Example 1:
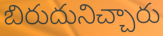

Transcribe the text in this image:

బిరుదునిచ్చారు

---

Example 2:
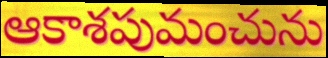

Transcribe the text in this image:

ఆకాశపుమంచును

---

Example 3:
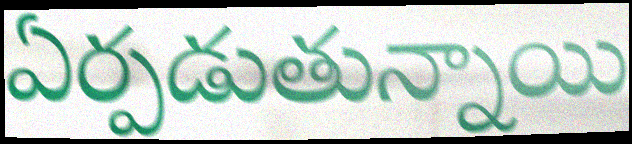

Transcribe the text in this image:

ఏర్పడుతున్నాయి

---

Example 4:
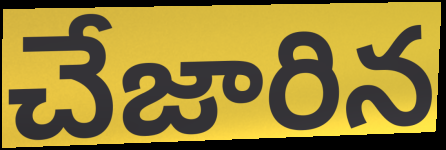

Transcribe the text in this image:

చేజారిన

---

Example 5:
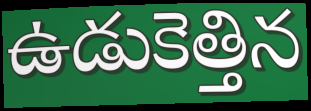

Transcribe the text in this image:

ఉడుకెత్తిన